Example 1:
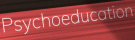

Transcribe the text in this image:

Psychoeducation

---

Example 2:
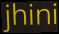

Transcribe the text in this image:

jhini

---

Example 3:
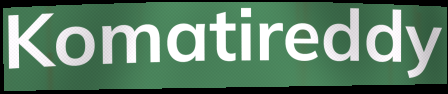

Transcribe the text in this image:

Komatireddy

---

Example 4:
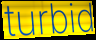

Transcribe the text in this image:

turbid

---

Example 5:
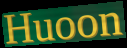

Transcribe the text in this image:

Huoon